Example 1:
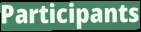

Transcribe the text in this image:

Participants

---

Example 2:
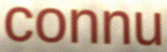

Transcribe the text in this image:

connu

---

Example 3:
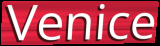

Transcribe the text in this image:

Venice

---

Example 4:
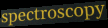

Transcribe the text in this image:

spectroscopy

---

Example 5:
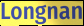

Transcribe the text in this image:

Longnan